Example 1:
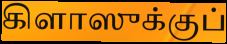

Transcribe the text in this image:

கிளாஸுக்குப்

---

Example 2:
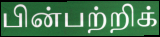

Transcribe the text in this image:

பின்பற்றிக்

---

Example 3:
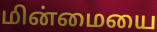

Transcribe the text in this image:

மின்மையை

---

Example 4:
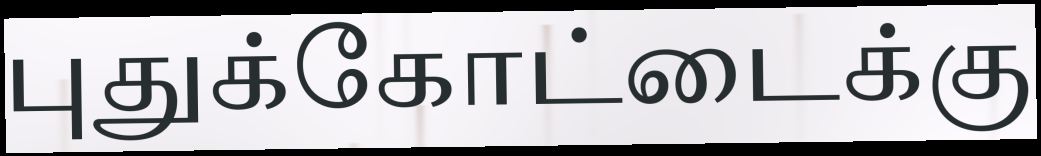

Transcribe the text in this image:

புதுக்கோட்டைக்கு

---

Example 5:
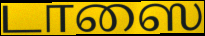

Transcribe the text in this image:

டாஸை